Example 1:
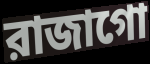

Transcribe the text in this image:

রাজাগো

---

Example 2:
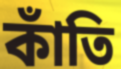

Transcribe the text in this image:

কাঁতি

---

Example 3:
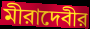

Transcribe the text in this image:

মীরাদেবীর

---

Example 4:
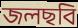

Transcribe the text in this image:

জলছবি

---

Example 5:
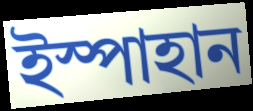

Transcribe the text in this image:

ইস্পাহান